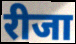
रीजा